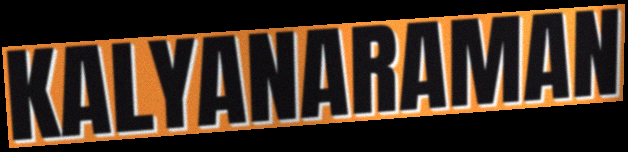
KALYANARAMAN